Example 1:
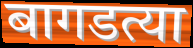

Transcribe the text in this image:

बागडत्या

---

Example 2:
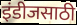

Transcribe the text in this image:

इंडीजसाठी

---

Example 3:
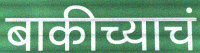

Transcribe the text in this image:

बाकीच्याचं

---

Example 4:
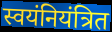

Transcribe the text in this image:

स्वयंनियंत्रित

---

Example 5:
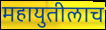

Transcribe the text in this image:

महायुतीलाच